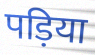
पड़िया